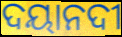
ଦୟାନଦୀ